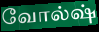
வோல்ஷ்